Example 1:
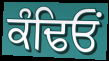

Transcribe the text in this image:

ਕੰਢਿਓਂ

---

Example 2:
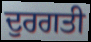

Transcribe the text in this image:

ਦੁਰਗਤੀ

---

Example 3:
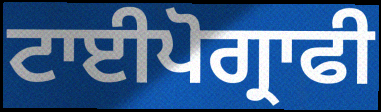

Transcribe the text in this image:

ਟਾਈਪੋਗ੍ਰਾਫੀ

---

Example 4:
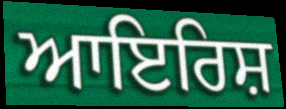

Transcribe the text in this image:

ਆਇਰਿਸ਼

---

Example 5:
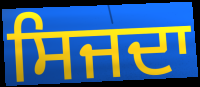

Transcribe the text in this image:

ਸਿਜਦਾ